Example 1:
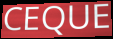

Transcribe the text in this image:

CEQUE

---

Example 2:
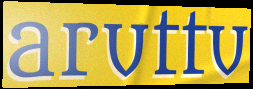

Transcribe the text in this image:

aruttu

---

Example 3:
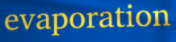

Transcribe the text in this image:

evaporation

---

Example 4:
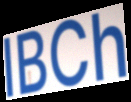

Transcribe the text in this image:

IBCh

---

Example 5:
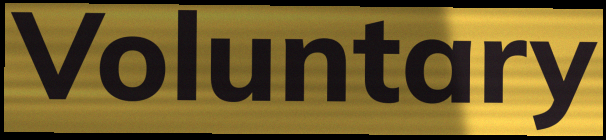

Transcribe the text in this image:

Voluntary